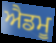
ਐਡਮੂ